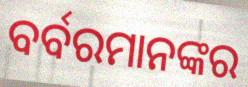
ବର୍ବରମାନଙ୍କର